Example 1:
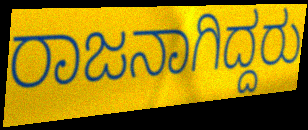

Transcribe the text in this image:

ರಾಜನಾಗಿದ್ದರು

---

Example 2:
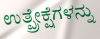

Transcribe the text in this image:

ಉತ್ಪ್ರೇಕ್ಷೆಗಳನ್ನು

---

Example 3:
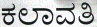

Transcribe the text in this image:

ಕಲಾವತಿ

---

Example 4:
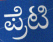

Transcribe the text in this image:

ಪ್ರೆಟಿ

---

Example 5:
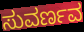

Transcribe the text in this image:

ಸುವರ್ಣವ